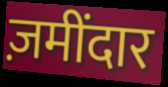
ज़मींदार